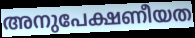
അനുപേക്ഷണീയത